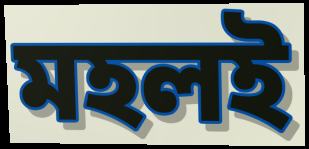
মহলই